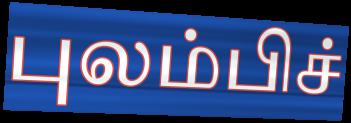
புலம்பிச்